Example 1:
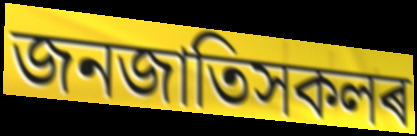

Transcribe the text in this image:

জনজাতিসকলৰ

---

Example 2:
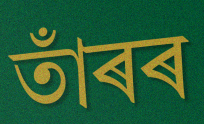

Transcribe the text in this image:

তাঁৰৰ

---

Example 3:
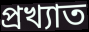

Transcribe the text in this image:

প্ৰখ্যাত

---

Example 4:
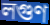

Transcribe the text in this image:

লগুণ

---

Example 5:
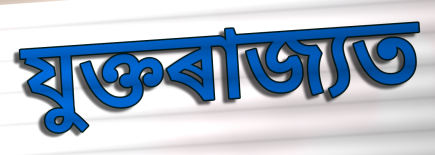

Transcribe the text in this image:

যুক্তৰাজ্যত